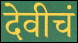
देवीचं